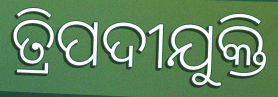
ତ୍ରିପଦୀଯୁକ୍ତି